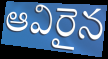
ఆవిరైన